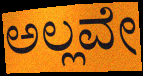
ಅಲ್ಲವೇ